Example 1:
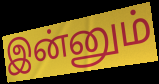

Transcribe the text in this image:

இன்னும்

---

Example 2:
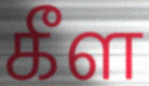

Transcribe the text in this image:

கீள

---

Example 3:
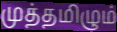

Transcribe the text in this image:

முத்தமிழும்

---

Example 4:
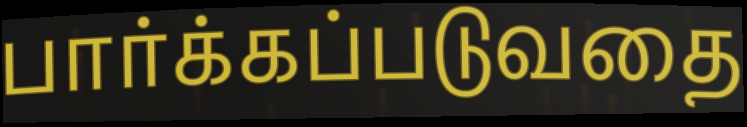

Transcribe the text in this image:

பார்க்கப்படுவதை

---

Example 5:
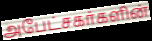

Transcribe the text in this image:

அபேட்சகர்களின்